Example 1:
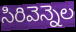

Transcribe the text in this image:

సిరివెన్నెల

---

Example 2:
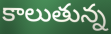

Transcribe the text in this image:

కాలుతున్న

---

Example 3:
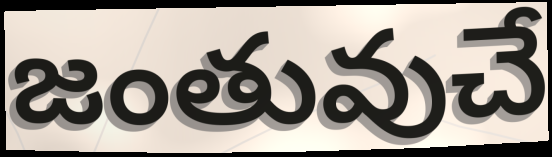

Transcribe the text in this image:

జంతువుచే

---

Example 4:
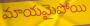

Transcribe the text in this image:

మాయమైపోయి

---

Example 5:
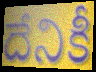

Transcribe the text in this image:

దేనికీ